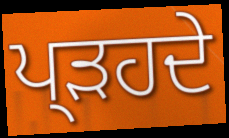
ਪ੍ੜਹਦੇ